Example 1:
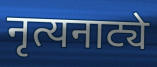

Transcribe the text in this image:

नृत्यनाट्ये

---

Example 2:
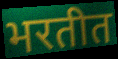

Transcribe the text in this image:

भरतीत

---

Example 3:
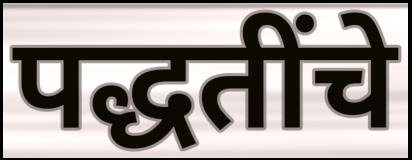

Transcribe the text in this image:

पद्धतींचे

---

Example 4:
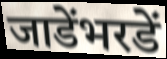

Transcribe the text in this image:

जाडेंभरडें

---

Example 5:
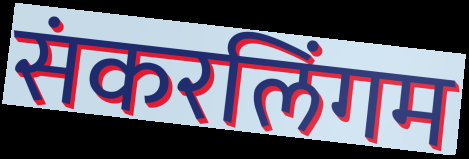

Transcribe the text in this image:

संकरलिंगम